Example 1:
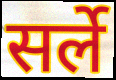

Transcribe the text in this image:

सर्ले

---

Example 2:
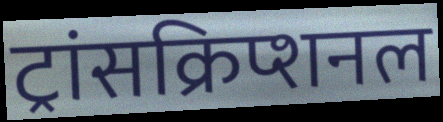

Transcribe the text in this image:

ट्रांसक्रिप्शनल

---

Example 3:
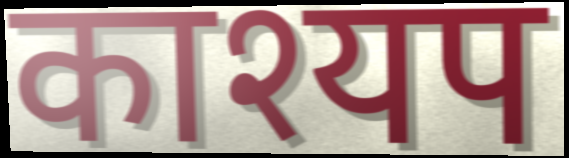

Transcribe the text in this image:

काश्यप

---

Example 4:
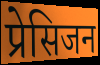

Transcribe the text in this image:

प्रेसिजन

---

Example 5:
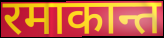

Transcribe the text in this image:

रमाकान्त